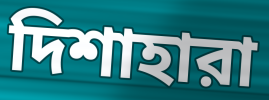
দিশাহারা